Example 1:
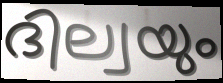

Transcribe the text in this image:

ദില്വയും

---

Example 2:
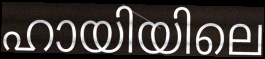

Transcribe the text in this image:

ഹായിയിലെ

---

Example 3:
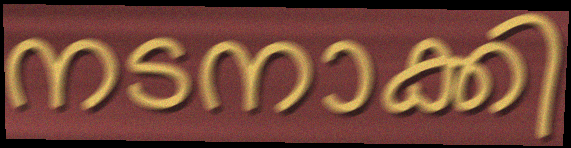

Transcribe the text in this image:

നടനാക്കി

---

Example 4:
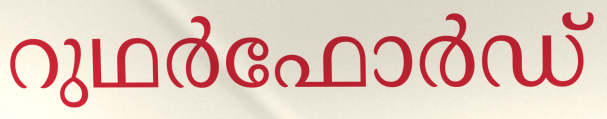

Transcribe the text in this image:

റുഥർഫോർഡ്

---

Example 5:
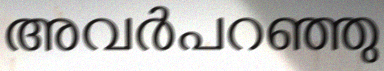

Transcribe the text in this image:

അവർപറഞ്ഞു